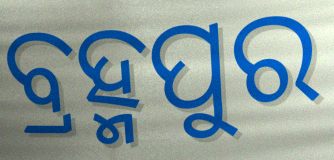
ବ୍ରହ୍ମପୁର